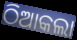
ଠିଆକଲା